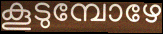
കൂടുമ്പോഴേ